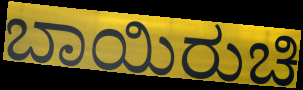
ಬಾಯಿರುಚಿ